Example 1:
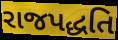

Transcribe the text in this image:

રાજપદ્ધતિ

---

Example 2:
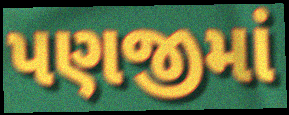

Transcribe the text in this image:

પણજીમાં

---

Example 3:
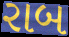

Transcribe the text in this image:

રાબ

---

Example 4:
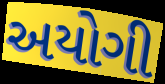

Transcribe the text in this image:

અયોગી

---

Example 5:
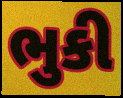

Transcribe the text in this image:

ભુકી